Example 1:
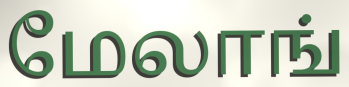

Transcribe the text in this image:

மேலாங்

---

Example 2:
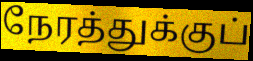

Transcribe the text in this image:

நேரத்துக்குப்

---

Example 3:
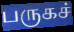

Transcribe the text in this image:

பருகச்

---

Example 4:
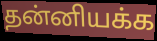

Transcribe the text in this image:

தன்னியக்க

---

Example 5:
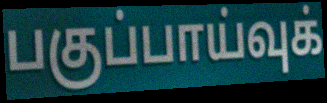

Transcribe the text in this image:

பகுப்பாய்வுக்